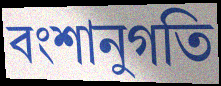
বংশানুগতি